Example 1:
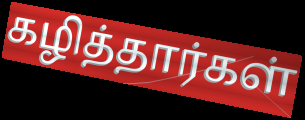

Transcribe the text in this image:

கழித்தார்கள்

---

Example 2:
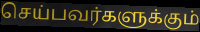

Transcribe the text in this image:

செய்பவர்களுக்கும்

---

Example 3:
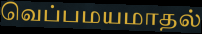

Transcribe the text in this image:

வெப்பமயமாதல்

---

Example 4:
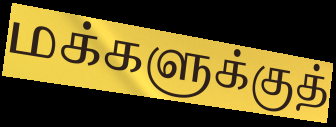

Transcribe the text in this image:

மக்களுக்குத்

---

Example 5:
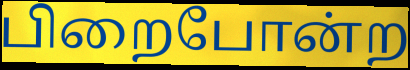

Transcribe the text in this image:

பிறைபோன்ற